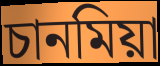
চানমিয়া